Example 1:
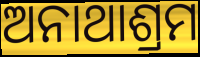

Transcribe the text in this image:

ଅନାଥାଶ୍ରମ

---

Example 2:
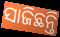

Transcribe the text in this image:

ସାଜିଛନ୍ତି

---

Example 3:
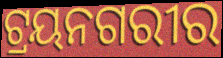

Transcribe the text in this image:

ଟ୍ରୟନଗରୀର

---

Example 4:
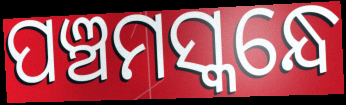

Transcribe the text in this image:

ପଞ୍ଚମସ୍କନ୍ଧେ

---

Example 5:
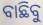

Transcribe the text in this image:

ବାଛିବୁ